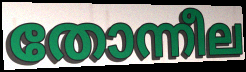
തോന്നീല